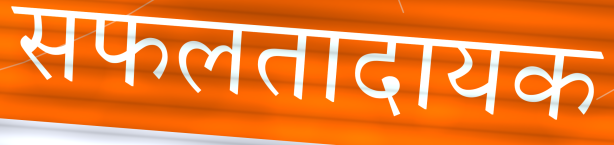
सफलतादायक